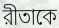
রীতাকে